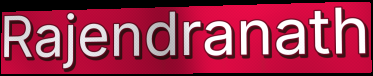
Rajendranath